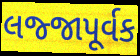
લજ્જાપૂર્વક